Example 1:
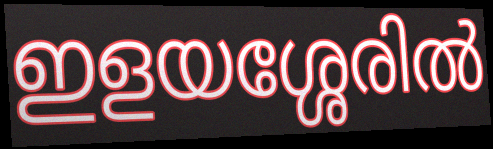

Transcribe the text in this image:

ഇളയശ്ശേരിൽ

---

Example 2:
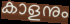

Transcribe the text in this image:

കാളനും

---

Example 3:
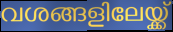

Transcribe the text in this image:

വശങ്ങളിലേയ്ക്ക്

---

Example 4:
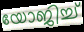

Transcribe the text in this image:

യോജിച്ച്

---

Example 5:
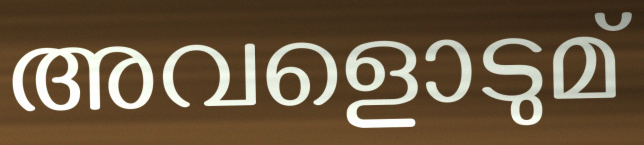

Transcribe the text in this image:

അവളൊടുമ്